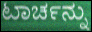
ಟಾರ್ಚನ್ನು